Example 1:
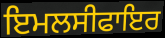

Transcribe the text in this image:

ਇਮਲਸੀਫਾਇਰ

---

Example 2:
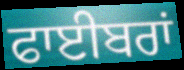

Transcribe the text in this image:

ਫਾਈਬਰਾਂ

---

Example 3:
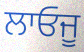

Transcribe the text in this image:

ਲਾਓਜੂ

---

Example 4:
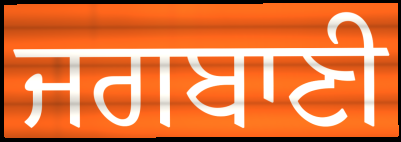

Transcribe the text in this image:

ਜਗਬਾਣੀ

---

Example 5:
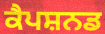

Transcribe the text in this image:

ਕੈਪਸ਼ਨਡ